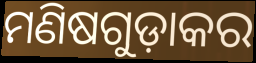
ମଣିଷଗୁଡ଼ାକର